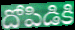
దోపిడికి